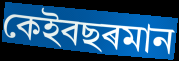
কেইবছৰমান